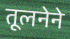
तूलनेने